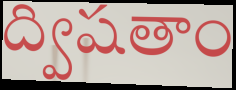
ద్విషతాం